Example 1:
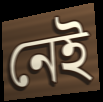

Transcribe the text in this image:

নেই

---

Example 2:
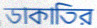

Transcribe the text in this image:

ডাকাতির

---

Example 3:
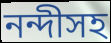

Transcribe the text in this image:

নন্দীসহ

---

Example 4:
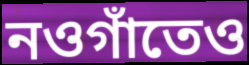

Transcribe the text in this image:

নওগাঁতেও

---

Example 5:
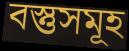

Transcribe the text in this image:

বস্তুসমূহ